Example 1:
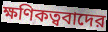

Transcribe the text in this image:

ক্ষণিকত্ববাদের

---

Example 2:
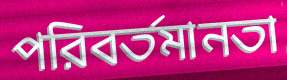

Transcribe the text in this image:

পরিবর্তমানতা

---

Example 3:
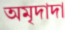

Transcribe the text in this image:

অমৃদাদা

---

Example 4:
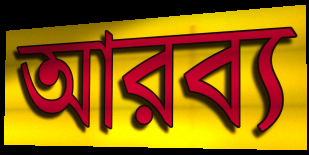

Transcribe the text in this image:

আরব্য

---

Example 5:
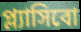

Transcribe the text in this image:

প্ল্যাসিবো